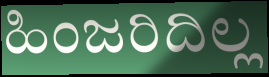
ಹಿಂಜರಿದಿಲ್ಲ